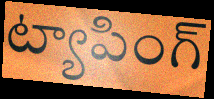
ట్యాపింగ్